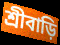
শ্রীবাড়ি